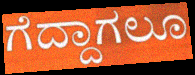
ಗೆದ್ದಾಗಲೂ